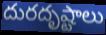
దురదృష్టాలు